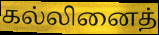
கல்லினைத்